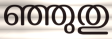
ഞ്ഞുതു